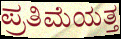
ಪ್ರತಿಮೆಯತ್ತ